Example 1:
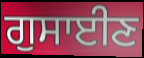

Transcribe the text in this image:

ਗੁਸਾਈਣ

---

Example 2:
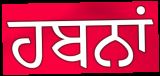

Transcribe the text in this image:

ਹਬਨਾਂ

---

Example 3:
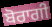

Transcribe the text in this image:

ਬੋਰਾਗੀ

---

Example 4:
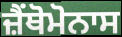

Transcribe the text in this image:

ਜ਼ੈਂਥੋਮੋਨਾਸ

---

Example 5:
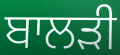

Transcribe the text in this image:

ਬਾਲੜੀ